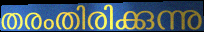
തരംതിരിക്കുന്നു